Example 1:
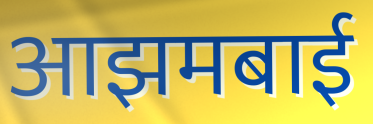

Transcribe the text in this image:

आझमबाई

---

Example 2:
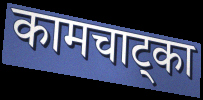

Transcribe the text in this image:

कामचाट्का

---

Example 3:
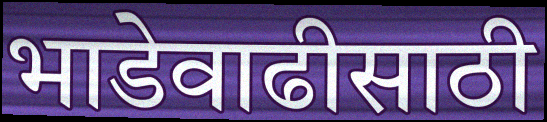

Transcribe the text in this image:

भाडेवाढीसाठी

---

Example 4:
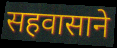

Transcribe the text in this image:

सहवासाने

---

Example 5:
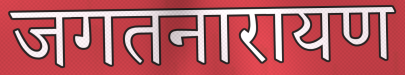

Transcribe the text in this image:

जगतनारायण